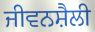
ਜੀਵਨਸ਼ੈਲੀ